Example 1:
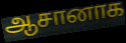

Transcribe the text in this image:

ஆசானாக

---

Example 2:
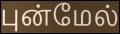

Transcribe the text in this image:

புன்மேல்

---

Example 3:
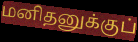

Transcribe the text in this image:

மனிதனுக்குப்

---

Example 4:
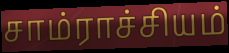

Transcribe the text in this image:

சாம்ராச்சியம்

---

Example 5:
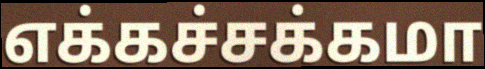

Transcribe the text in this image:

எக்கச்சக்கமா